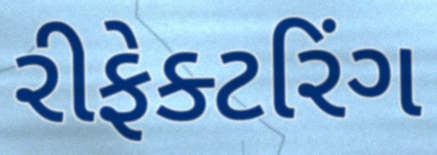
રીફેક્ટરિંગ